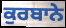
ਕੁਰਬਾਨੇ